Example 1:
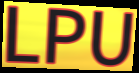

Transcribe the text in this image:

LPU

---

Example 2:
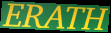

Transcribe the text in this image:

ERATH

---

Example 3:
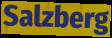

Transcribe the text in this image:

Salzberg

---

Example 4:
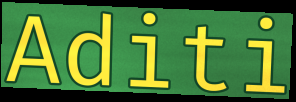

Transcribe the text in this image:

Aditi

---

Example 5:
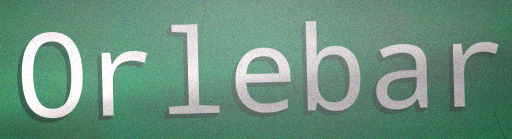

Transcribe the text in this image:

Orlebar